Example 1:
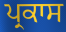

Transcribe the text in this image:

ਪ੍ਰਕਾਸ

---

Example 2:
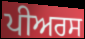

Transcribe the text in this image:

ਪੀਅਰਸ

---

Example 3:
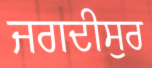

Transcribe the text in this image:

ਜਗਦੀਸੁਰ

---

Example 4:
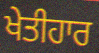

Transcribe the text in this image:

ਖੇਤੀਹਾਰ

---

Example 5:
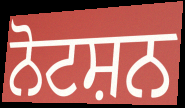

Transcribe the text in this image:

ਨੋਟਸ਼ਨ